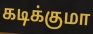
கடிக்குமா